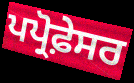
ਪਪ੍ਰੋਫ਼ੇਸਰ